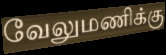
வேலுமணிக்கு